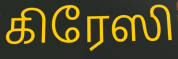
கிரேஸி